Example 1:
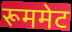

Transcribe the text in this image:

रूममेट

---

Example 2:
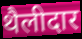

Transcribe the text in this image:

थैलीदार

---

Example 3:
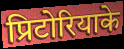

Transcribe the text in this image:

प्रिटोरियाके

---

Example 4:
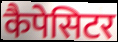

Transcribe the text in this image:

कैपेसिटर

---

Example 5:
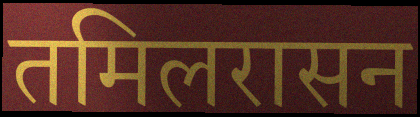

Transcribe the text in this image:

तमिलरासन